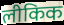
लीकिक